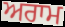
ਅਰਾਮ